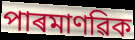
পাৰমাণৱিক